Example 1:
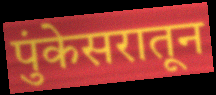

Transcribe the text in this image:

पुंकेसरातून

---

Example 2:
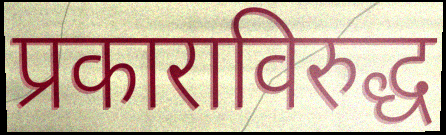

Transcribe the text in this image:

प्रकाराविरुद्ध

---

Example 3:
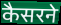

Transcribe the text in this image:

कैसरने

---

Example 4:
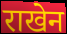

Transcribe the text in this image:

राखेन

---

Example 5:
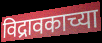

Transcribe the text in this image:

विद्रावकाच्या